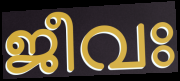
ജീവഃ